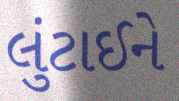
લુંટાઈને